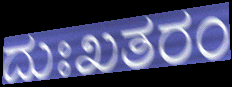
ದುಃಖತರಂ